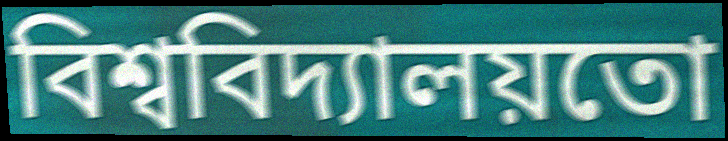
বিশ্ববিদ্যালয়তো